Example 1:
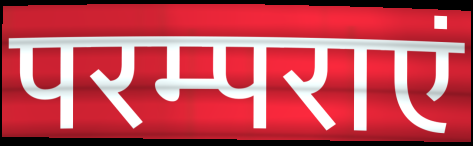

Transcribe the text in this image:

परम्पराएं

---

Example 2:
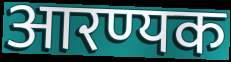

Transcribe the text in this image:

आरण्यक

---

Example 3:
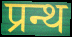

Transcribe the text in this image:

प्रन्थ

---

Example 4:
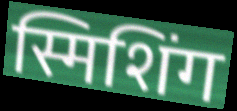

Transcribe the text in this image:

स्मिशिंग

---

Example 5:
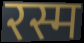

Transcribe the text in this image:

रस्म